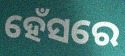
ହେଁସରେ